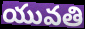
యువతి